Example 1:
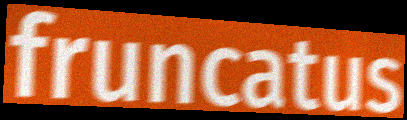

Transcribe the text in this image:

fruncatus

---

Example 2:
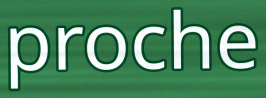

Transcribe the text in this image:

proche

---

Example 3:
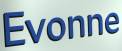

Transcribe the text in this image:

Evonne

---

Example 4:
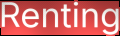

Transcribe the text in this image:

Renting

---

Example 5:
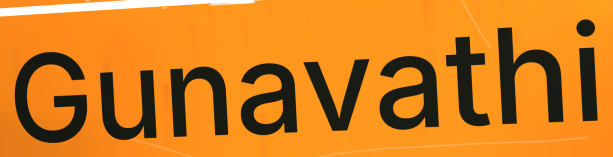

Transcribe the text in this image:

Gunavathi